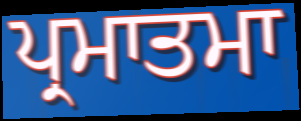
ਪ੍ਰਮਾਤਮਾ